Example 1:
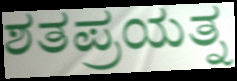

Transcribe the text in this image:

ಶತಪ್ರಯತ್ನ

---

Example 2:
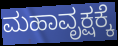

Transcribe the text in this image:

ಮಹಾವೃಕ್ಷಕ್ಕೆ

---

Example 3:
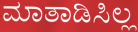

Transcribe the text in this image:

ಮಾತಾಡಿಸಿಲ್ಲ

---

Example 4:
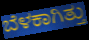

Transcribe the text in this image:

ಬೆಳಕಾಗಿತ್ತು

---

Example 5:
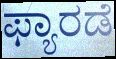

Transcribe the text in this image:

ಫ್ಯಾರಡೆ